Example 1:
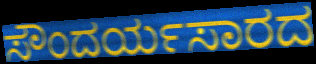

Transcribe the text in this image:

ಸೌಂದರ್ಯಸಾರದ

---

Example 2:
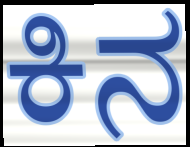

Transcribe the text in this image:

ಕಿನ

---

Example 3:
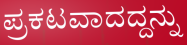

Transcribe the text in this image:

ಪ್ರಕಟವಾದದ್ದನ್ನು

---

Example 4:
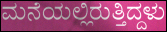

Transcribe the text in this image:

ಮನೆಯಲ್ಲಿರುತ್ತಿದ್ದಳು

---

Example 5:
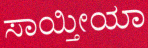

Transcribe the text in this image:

ಸಾಯ್ತೀಯಾ